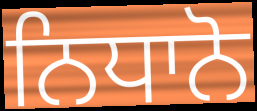
ਨਿਧਾਨੋ